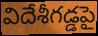
విదేశీగడ్డపై